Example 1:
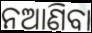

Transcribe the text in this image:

ନଆଣିବା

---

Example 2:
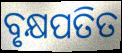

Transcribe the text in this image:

ବୃକ୍ଷପତିତ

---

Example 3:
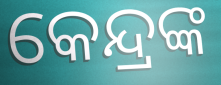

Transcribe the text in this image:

କେନ୍ଦ୍ରଙ୍କ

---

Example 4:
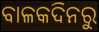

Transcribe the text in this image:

ବାଳକଦିନରୁ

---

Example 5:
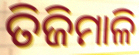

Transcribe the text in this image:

ତିଜିମାଳି